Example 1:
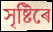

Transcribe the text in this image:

সৃষ্টিৰে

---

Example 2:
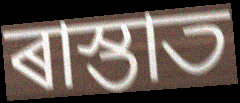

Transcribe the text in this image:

ৰাস্তাত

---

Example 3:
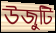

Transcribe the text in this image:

উজুটি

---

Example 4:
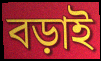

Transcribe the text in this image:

বড়াই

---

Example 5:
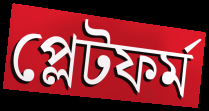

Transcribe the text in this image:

প্লেটফৰ্ম